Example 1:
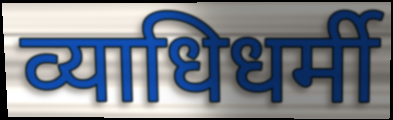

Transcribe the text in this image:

व्याधिधर्मी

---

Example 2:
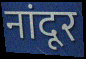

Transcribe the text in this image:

नांदूर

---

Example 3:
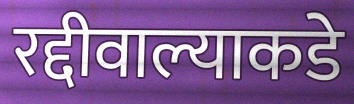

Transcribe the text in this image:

रद्दीवाल्याकडे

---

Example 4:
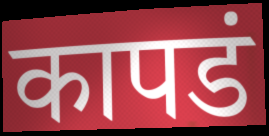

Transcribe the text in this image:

कापडं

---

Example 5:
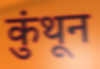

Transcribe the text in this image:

कुंथून